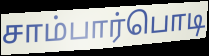
சாம்பார்பொடி